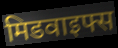
मिडवाइफ्स